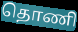
தொணி